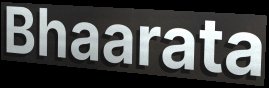
Bhaarata